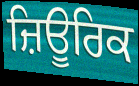
ਜ਼ਿਊਰਿਕ